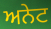
ਅਨੇਟ